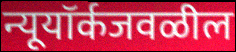
न्यूयॉर्कजवळील